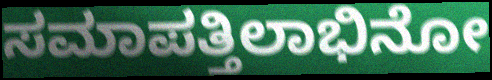
ಸಮಾಪತ್ತಿಲಾಭಿನೋ